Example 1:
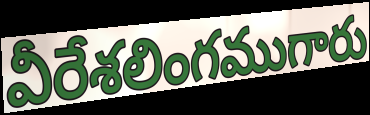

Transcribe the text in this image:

వీరేశలింగముగారు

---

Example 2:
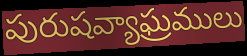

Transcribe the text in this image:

పురుషవ్యాఘ్రములు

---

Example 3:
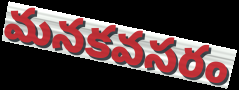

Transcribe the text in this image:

మనకవసరం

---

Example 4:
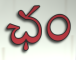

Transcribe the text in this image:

ఛం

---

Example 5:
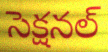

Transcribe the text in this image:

సెక్షనల్